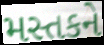
મસ્તકને